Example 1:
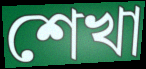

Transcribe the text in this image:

শেখা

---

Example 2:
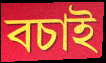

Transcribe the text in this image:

বচাই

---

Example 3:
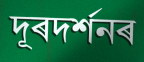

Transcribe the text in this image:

দূৰদৰ্শনৰ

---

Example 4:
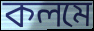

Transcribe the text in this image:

কলমে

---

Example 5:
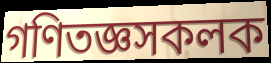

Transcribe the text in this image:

গণিতজ্ঞসকলক